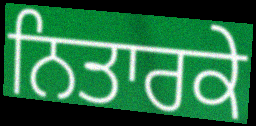
ਨਿਤਾਰਕੇ